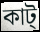
কাট্